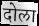
दोला